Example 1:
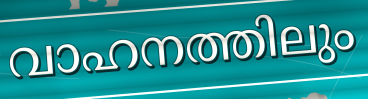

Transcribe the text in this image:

വാഹനത്തിലും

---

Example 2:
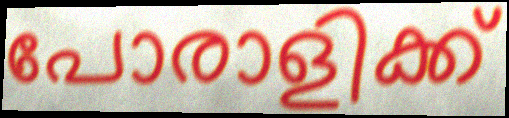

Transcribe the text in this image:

പോരാളിക്ക്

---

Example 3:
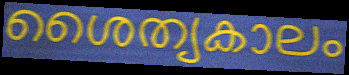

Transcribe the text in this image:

ശൈത്യകാലം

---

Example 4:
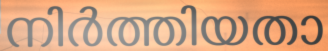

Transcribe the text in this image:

നിർത്തിയതാ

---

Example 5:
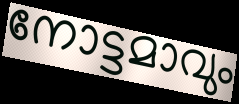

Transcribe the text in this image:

നോട്ടമാവും